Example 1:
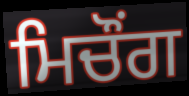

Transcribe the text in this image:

ਮਿਚੌਂਗ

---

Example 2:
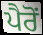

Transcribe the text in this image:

ਪੈਰੋਂ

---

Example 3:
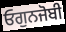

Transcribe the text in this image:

ਓਗੁਨਜੋਬੀ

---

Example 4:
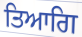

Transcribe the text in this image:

ਤਿਆਗਿ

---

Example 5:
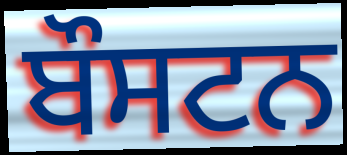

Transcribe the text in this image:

ਬੌਸਟਨ